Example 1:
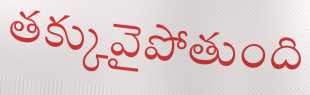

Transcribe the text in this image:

తక్కువైపోతుంది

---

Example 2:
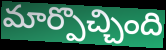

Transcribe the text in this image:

మార్పొచ్చింది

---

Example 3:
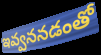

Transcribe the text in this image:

ఇవ్వననడంతో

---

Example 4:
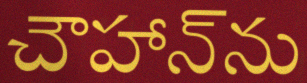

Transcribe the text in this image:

చౌహాన్‌ను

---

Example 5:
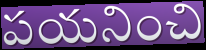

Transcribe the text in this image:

పయనించి